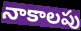
నాకాలపు